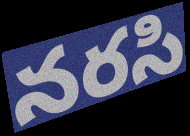
నరసి